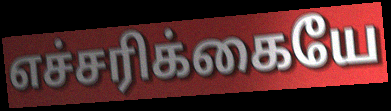
எச்சரிக்கையே